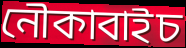
নৌকাবাইচ